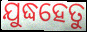
ଯୁଦ୍ଧହେତୁ